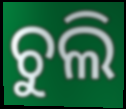
ଚୁଲି